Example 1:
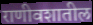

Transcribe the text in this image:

राणीवशातील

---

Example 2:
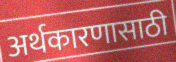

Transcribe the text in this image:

अर्थकारणासाठी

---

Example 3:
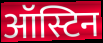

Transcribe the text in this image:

ऑस्टिन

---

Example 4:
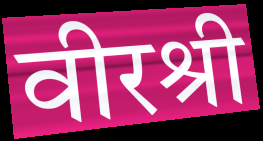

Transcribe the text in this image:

वीरश्री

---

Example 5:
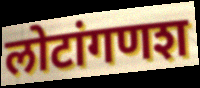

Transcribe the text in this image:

लोटांगणश